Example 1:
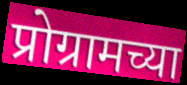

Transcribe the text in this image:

प्रोग्रामच्या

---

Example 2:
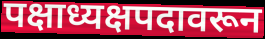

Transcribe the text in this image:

पक्षाध्यक्षपदावरून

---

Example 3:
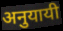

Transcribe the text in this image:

अनुयायी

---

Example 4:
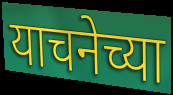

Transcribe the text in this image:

याचनेच्या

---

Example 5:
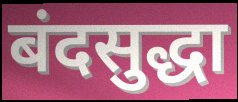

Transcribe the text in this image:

बंदसुद्धा